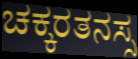
ಚಕ್ಕರತನಸ್ಸ